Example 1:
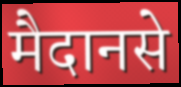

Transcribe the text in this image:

मैदानसे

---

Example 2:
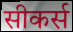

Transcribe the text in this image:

सीकर्स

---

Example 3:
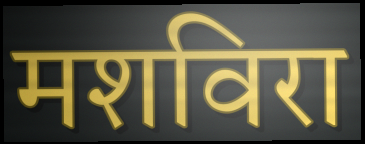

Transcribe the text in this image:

मशविरा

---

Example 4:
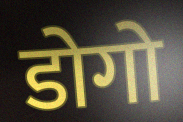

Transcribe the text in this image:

डोगो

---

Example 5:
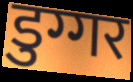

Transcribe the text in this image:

डुग्गर